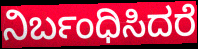
ನಿರ್ಬಂಧಿಸಿದರೆ